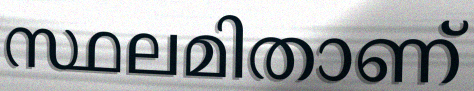
സ്ഥലമിതാണ്